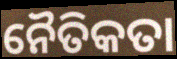
ନୈତିକତା